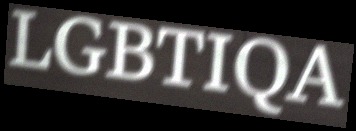
LGBTIQA